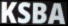
KSBA